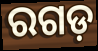
ରଗଡ଼